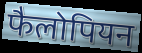
फैलोपियन